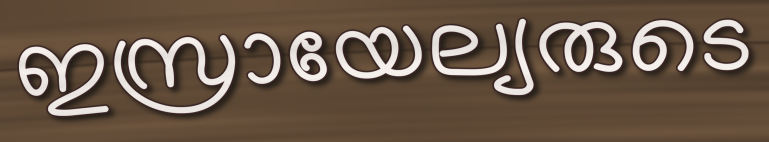
ഇസ്രായേല്യരുടെ